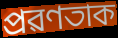
প্ৰৱণতাক